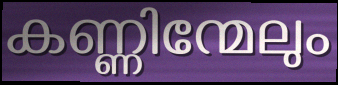
കണ്ണിന്മേലും